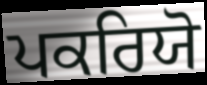
ਪਕਰਿਯੋ